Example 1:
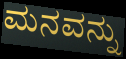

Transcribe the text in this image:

ಮನವನ್ನು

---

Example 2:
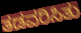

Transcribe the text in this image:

ತಡವರಿಸಿತು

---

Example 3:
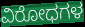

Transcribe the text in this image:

ವಿರೋಧಗಳ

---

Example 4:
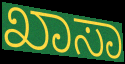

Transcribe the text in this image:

ಖಾಸಾ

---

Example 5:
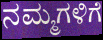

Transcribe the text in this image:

ನಮ್ಮಗಳಿಗೆ